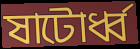
ষাটোর্ধ্ব